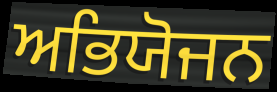
ਅਭਿਯੋਜਨ